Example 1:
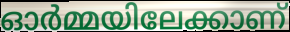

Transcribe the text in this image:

ഓർമ്മയിലേക്കാണ്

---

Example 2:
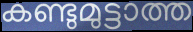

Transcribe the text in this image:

കണ്ടുമുട്ടാത്ത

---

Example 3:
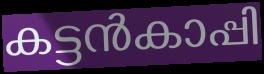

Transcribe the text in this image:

കട്ടൻകാപ്പി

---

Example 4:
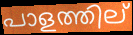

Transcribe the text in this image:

പാളത്തില്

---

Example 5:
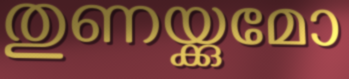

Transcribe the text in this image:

തുണയ്ക്കുമോ